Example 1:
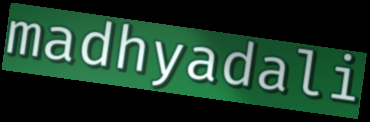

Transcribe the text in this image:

madhyadali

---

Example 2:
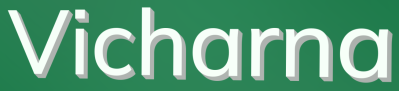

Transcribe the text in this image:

Vicharna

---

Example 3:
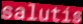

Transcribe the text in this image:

salutis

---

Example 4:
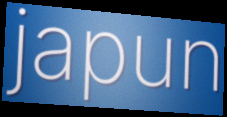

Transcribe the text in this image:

japun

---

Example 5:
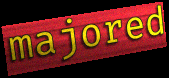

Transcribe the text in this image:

majored